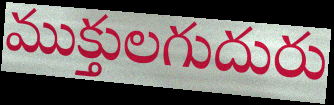
ముక్తులగుదురు